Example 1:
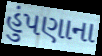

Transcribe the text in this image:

હુંપણાના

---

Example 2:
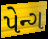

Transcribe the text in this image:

પેન્ગ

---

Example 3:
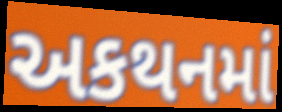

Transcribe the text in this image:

અકથનમાં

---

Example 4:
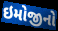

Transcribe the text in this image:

ઇમોજીનો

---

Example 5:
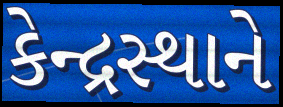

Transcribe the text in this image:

કેન્દ્રસ્થાને